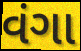
વંગા